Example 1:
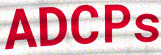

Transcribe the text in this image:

ADCPs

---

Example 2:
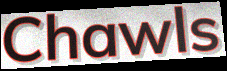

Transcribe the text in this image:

Chawls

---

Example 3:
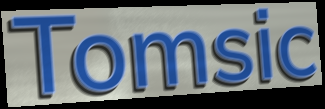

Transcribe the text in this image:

Tomsic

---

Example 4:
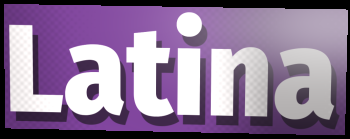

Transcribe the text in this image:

Latina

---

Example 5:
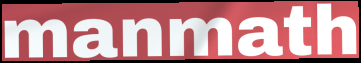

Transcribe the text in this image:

manmath